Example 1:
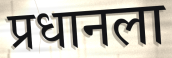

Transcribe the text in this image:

प्रधानला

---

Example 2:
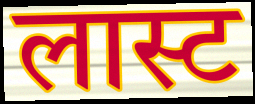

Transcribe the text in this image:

लास्ट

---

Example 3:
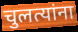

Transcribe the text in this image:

चुलत्यांना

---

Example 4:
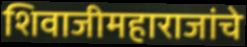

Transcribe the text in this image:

शिवाजीमहाराजांचे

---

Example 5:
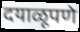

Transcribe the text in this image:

दयाळूपणे